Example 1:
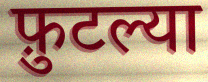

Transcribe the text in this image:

फ़ुटल्या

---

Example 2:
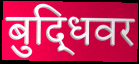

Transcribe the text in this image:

बुद्धिवर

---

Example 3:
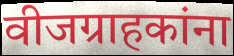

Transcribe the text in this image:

वीजग्राहकांना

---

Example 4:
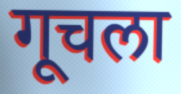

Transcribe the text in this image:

गूचला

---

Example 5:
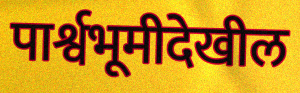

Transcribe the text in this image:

पार्श्वभूमीदेखील